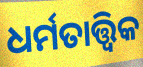
ଧର୍ମତାତ୍ତ୍ଵିକ